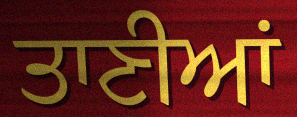
ਤਾਣੀਆਂ